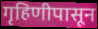
गृहिणीपासून